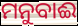
ମନୁବାଈ